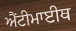
ਐਂਟੀਮਾਈਥ